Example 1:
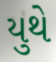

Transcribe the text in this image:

યુથે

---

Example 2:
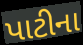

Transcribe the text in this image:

પાટીના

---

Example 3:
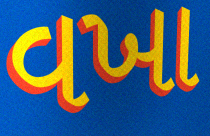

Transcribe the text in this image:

વખા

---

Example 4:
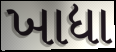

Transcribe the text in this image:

ખાદ્યા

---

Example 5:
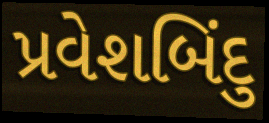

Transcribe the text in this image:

પ્રવેશબિંદુ